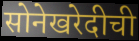
सोनेखरेदीची